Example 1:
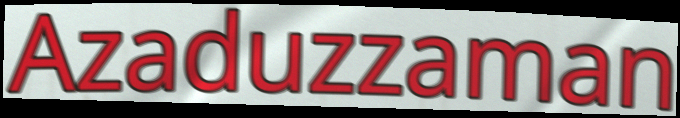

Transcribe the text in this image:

Azaduzzaman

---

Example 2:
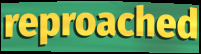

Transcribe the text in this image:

reproached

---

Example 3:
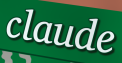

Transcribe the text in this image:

claude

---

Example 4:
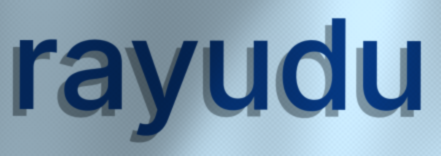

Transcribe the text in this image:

rayudu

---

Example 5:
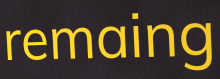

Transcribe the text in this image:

remaing